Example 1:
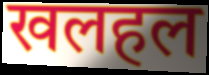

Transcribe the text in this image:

खलहल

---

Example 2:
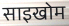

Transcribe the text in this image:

साइखोम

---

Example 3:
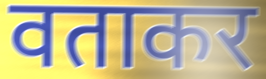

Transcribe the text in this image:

वताकर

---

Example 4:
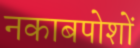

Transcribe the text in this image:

नकाबपोशों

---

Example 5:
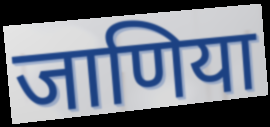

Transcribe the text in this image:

जाणिया